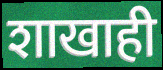
शाखाही